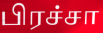
பிரச்சா